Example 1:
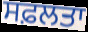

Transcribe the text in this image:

ਸਫ਼ਲਤਾ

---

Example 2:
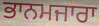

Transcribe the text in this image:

ਭਾਨਮਜਾਰਾ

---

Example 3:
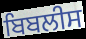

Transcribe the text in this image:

ਬਿਬਲੀਸ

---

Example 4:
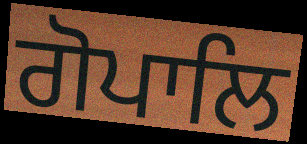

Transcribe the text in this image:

ਗੋਪਾਲਿ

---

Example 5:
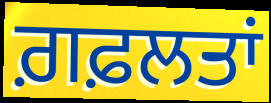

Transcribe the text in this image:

ਗ਼ਫ਼ਲਤਾਂ